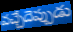
వచ్చేదెప్పుడు